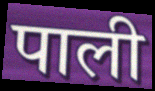
पाली